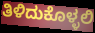
ತಿಳಿದುಕೊಳ್ಳಲಿ